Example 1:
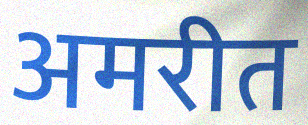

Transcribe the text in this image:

अमरीत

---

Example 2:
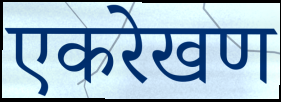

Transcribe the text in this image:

एकरेखण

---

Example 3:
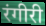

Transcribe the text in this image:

रंगीरी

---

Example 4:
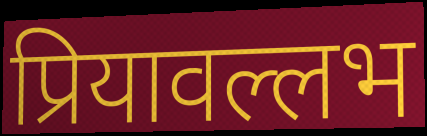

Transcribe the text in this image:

प्रियावल्लभ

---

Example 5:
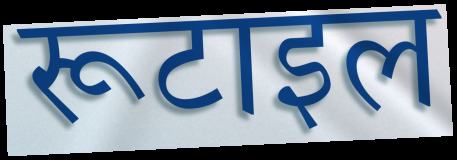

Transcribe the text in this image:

रूटाइल